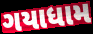
ગયાધામ